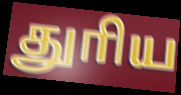
துரிய